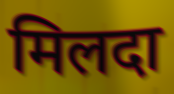
मिलदा